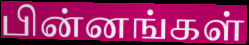
பின்னங்கள்